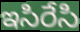
ఇసిరేసి